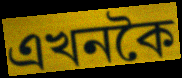
এখনকৈ